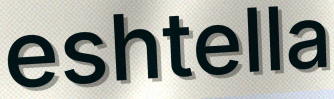
eshtella